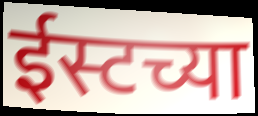
ईस्टच्या